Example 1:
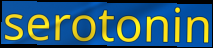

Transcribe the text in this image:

serotonin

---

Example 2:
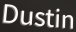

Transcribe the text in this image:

Dustin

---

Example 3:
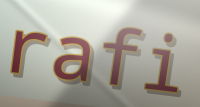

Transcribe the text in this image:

rafi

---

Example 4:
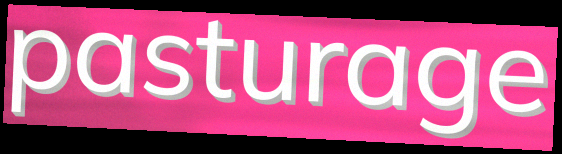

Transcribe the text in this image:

pasturage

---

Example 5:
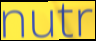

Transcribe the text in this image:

nutr